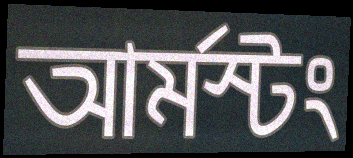
আর্মস্টং